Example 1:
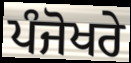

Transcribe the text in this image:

ਪੰਜੋਖਰੇ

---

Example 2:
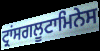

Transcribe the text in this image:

ਟ੍ਰਾਂਸਗਲੂਟਾਮਿਨੇਸ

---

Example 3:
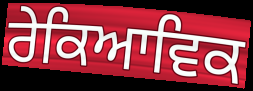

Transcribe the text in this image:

ਰੇਕਿਆਵਿਕ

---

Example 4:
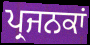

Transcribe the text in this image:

ਪ੍ਰਜਨਕਾਂ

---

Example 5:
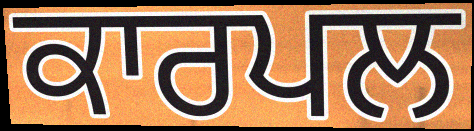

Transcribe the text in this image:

ਕਾਰਪਲ